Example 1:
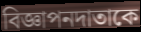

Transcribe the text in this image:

বিজ্ঞাপনদাতাকে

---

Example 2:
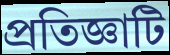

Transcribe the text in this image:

প্রতিজ্ঞাটি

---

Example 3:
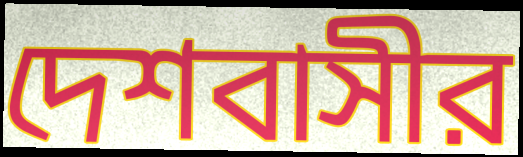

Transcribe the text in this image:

দেশবাসীর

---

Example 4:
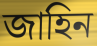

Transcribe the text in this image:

জাহিন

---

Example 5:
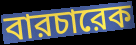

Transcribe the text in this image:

বারচারেক